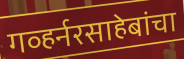
गव्हर्नरसाहेबांचा